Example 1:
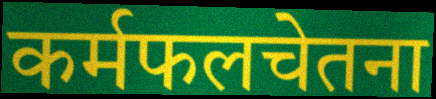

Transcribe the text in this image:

कर्मफलचेतना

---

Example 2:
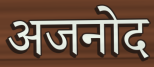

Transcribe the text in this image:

अजनोद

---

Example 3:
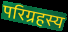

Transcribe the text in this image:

परिग्रहस्य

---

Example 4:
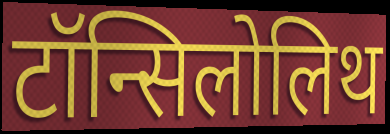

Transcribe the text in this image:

टॉन्सिलोलिथ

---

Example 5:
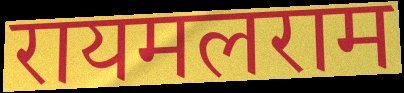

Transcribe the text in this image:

रायमलराम